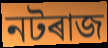
নটৰাজ